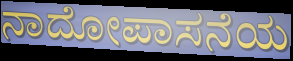
ನಾದೋಪಾಸನೆಯ